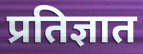
प्रतिज्ञात